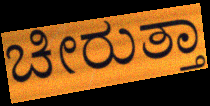
ಚೀರುತ್ತಾ